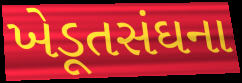
ખેડૂતસંઘના